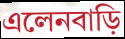
এলেনবাড়ি